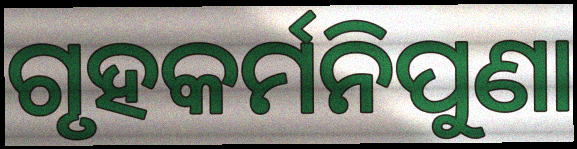
ଗୃହକର୍ମନିପୁଣା